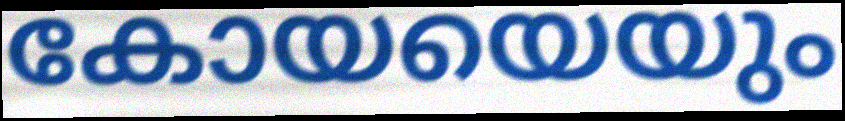
കോയയെയും